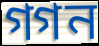
গগন